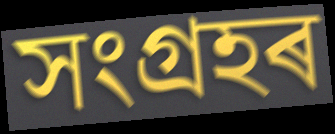
সংগ্ৰহৰ